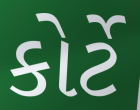
કોર્ટે